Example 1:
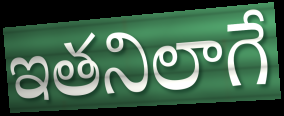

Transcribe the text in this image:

ఇతనిలాగే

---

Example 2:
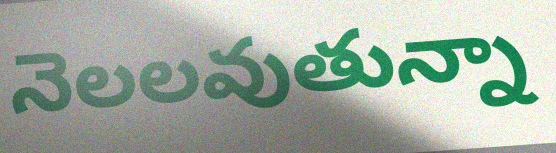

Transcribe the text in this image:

నెలలవుతున్నా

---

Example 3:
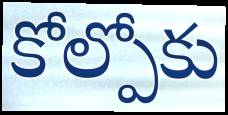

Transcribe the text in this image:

కోల్పోకు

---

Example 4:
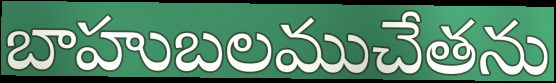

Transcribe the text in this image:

బాహుబలముచేతను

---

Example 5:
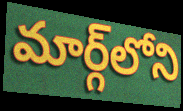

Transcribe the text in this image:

మార్గ్‌లోని